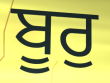
ਬੂਰੁ